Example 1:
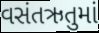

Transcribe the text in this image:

વસંતઋતુમાં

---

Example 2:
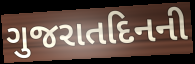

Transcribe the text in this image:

ગુજરાતદિનની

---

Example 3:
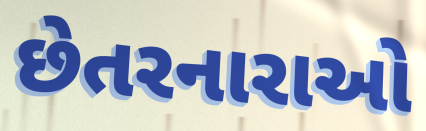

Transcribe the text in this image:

છેતરનારાઓ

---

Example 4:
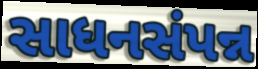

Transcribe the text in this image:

સાધનસંપન્ન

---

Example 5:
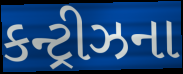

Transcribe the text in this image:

કન્ટ્રીઝના